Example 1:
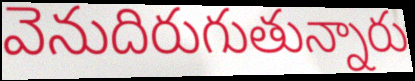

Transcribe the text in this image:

వెనుదిరుగుతున్నారు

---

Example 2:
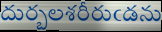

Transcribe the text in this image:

దుర్బలశరీరుఁడను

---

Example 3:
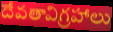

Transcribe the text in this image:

దేవతావిగ్రహాలు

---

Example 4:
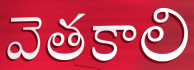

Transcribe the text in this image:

వెతకాలి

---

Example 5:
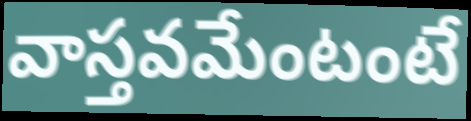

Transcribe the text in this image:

వాస్తవమేంటంటే